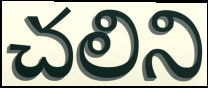
చలిని